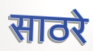
साठरे